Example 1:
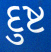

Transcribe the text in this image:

દુષ્ટ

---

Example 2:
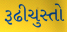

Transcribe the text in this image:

રૂઢીચુસ્તો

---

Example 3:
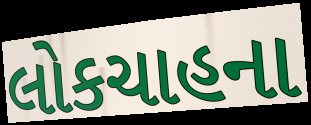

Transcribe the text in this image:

લોકચાહના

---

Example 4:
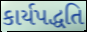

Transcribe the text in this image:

કાર્યપદ્ધતિ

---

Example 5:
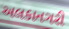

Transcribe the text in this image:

અલકાનગરી